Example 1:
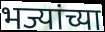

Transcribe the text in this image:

भज्यांच्या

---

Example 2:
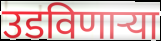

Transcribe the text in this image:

उडविणार्‍या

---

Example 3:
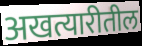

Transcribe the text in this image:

अखत्यारीतील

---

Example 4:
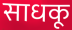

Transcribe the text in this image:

साधकू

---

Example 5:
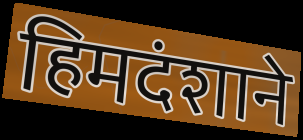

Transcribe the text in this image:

हिमदंशाने